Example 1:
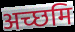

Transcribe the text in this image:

अच्छमि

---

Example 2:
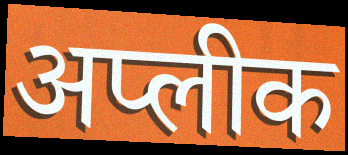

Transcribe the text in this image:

अप्लीक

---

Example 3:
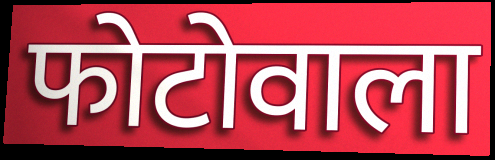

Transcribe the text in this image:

फोटोवाला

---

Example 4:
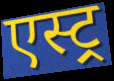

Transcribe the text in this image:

एस्ट्र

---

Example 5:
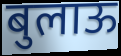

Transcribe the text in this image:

बुलाऊ